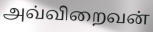
அவ்விறைவன்